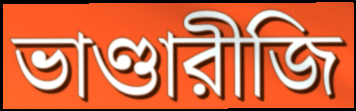
ভাণ্ডারীজি